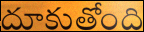
దూకుతోంది